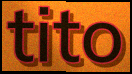
tito